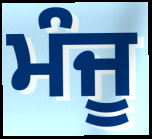
ਮੰਜੂ